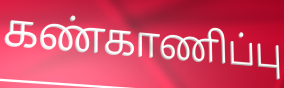
கண்காணிப்பு